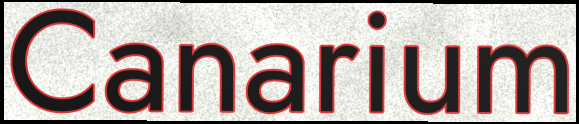
Canarium